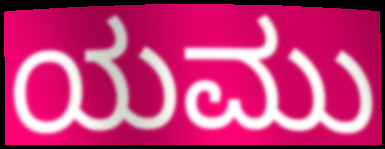
ಯಮು